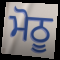
ਮੋਠੂ